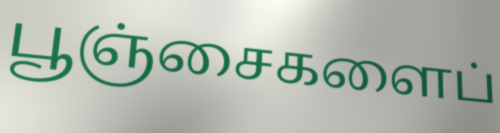
பூஞ்சைகளைப்